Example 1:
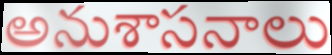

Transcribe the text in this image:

అనుశాసనాలు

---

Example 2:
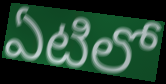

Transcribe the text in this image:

ఏటిలో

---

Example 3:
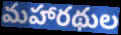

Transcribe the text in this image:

మహారథుల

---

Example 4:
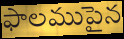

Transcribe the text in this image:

ఫాలముపైన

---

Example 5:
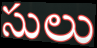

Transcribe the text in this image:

సులు